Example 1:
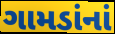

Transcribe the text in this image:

ગામડાંનાં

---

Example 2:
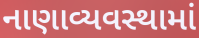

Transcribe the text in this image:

નાણાવ્યવસ્થામાં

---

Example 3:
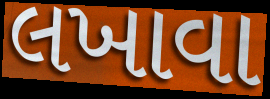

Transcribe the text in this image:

લખાવા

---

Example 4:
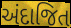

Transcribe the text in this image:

અંદાજિત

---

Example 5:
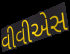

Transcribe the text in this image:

વીવીએસ